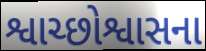
શ્વાચ્છોશ્વાસના